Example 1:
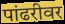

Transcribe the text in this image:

पांढरीवर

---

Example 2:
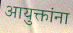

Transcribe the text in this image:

आयुक्तांना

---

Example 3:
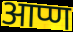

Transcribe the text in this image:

आप्ण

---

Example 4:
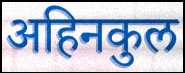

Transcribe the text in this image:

अहिनकुल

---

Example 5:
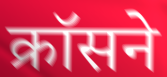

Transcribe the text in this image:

क्रॉसने